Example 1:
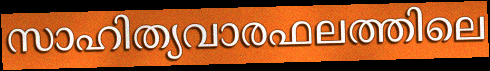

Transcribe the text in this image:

സാഹിത്യവാരഫലത്തിലെ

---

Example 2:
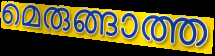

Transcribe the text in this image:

മെരുങ്ങാത്ത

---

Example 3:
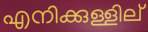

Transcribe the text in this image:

എനിക്കുള്ളില്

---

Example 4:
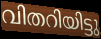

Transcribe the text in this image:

വിതറിയിട്ടു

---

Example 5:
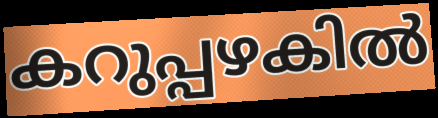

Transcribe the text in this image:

കറുപ്പഴകിൽ